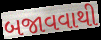
બજાવવાથી